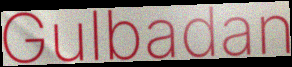
Gulbadan